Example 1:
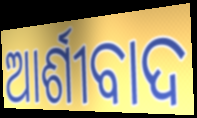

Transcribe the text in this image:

ଆର୍ଶୀବାଦ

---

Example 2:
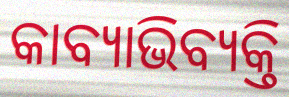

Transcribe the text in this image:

କାବ୍ୟାଭିବ୍ୟକ୍ତି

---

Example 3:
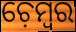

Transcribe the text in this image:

ଚ଼େମ୍ୱର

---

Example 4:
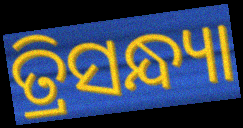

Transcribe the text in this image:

ତ୍ରିସନ୍ଧ୍ୟା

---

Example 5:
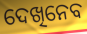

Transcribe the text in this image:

ଦେଖିନେବ